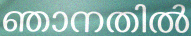
ഞാനതിൽ